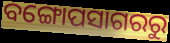
ବଙ୍ଗୋପସାଗରରୁ